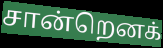
சான்றெனக்